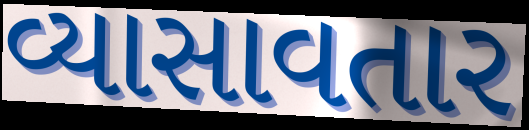
વ્યાસાવતાર